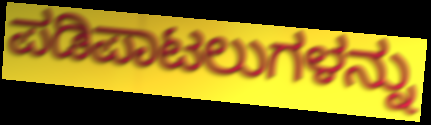
ಪಡಿಪಾಟಲುಗಳನ್ನು